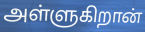
அள்ளுகிறான்